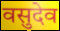
वसुदेव